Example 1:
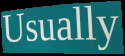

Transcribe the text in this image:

Usually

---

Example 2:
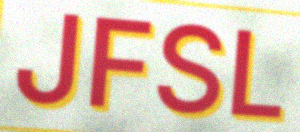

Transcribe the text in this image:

JFSL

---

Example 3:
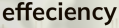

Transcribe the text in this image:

effeciency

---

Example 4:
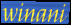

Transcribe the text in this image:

winani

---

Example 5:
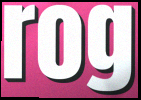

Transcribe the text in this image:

rog